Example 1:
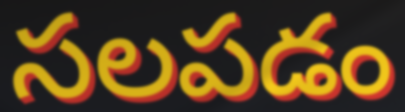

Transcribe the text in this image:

సలపడం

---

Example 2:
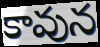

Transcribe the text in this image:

కావున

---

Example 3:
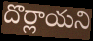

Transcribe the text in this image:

దొర్లాయని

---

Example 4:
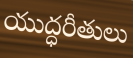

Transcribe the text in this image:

యుద్ధరీతులు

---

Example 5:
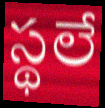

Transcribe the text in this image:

స్థలే